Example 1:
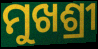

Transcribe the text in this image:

ମୁଖଶ୍ରୀ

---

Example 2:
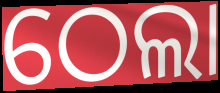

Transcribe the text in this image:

ଠେଲା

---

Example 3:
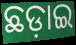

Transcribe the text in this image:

ଛଡ଼ାଇ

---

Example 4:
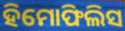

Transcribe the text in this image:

ହିମୋଫିଲିସ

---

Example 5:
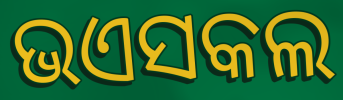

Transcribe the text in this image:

ଭଏସକଲ